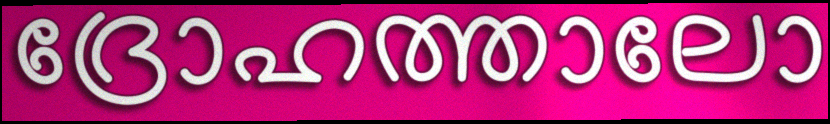
ദ്രോഹത്താലോ